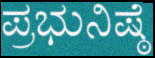
ಪ್ರಭುನಿಷ್ಠೆ